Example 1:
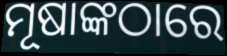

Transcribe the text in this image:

ମୂଷାଙ୍କଠାରେ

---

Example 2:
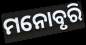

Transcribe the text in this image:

ମନୋବୃରି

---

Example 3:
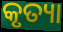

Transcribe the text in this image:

କୃତ୍ୟା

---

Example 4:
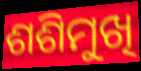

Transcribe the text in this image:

ଶଶିମୁଖି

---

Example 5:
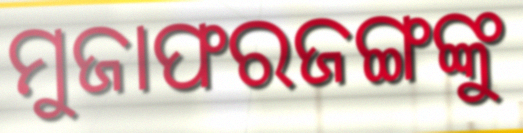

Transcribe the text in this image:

ମୁଜାଫରଜଙ୍ଗଙ୍କୁ